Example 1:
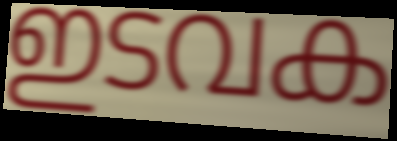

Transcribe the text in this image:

ഇടവക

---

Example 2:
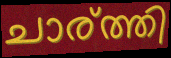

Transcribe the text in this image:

ചാര്ത്തി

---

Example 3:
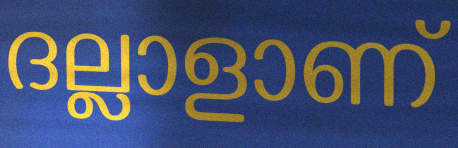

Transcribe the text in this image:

ദല്ലാളാണ്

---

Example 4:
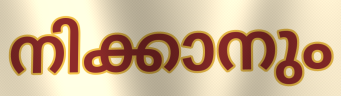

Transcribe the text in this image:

നിക്കാനും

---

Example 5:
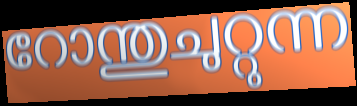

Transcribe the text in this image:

റോന്തുചുറ്റുന്ന